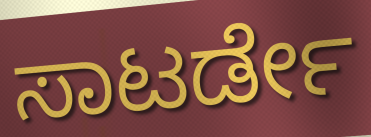
ಸಾಟರ್ಡೇ